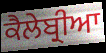
ਕੈਲੇਬ੍ਰੀਆ